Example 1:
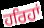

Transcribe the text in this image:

ਹਰਿਹਾਂ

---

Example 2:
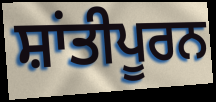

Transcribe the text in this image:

ਸ਼ਾਂਤੀਪੂਰਨ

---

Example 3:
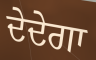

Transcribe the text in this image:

ਦੇਦੇਗਾ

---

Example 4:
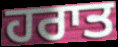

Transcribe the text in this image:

ਹਰਾਤ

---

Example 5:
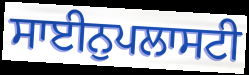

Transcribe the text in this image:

ਸਾਈਨੁਪਲਾਸਟੀ